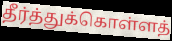
தீர்த்துக்கொள்ளத்